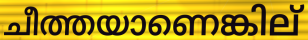
ചീത്തയാണെങ്കില്